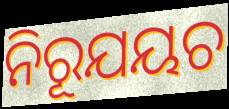
ନିରୂଯୟଚ